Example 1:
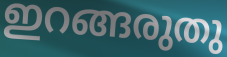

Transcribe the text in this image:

ഇറങ്ങരുതു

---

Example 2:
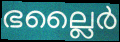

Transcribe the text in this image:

ഭല്ലൈർ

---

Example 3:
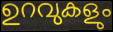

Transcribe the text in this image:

ഉറവുകളും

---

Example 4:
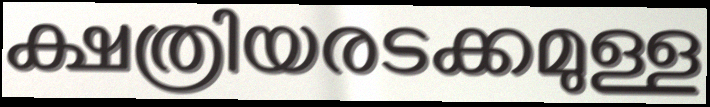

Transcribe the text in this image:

ക്ഷത്രിയരടക്കമുള്ള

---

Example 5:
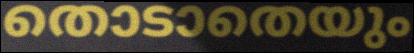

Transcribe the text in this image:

തൊടാതെയും